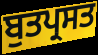
ਬੁਤਪ੍ਰਸਤ